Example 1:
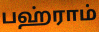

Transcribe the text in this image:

பஹ்ராம்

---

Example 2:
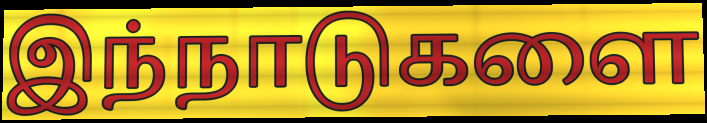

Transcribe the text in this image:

இந்நாடுகளை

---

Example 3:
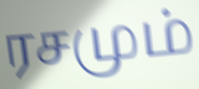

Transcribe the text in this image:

ரசமும்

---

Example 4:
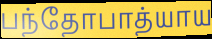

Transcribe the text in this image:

பந்தோபாத்யாய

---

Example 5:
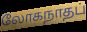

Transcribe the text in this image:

லோகநாதப்